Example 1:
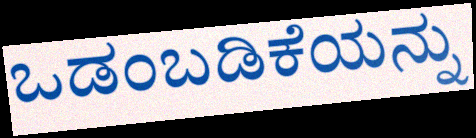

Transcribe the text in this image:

ಒಡಂಬಡಿಕೆಯನ್ನು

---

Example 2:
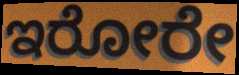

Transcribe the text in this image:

ಇರೋರೇ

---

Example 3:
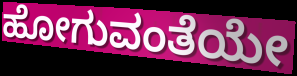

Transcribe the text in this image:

ಹೋಗುವಂತೆಯೇ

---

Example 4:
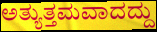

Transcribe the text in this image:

ಅತ್ಯುತ್ತಮವಾದದ್ದು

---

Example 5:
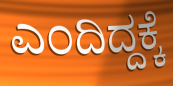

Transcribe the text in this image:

ಎಂದಿದ್ದಕ್ಕೆ